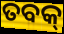
ତବକ୍